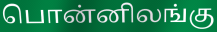
பொன்னிலங்கு